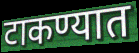
टाकण्यात